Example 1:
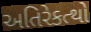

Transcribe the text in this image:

અતિરેકત્થો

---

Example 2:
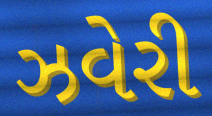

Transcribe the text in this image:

ઝવેરી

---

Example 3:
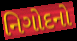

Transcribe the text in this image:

નિગોદનો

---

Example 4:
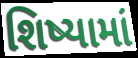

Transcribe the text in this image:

શિષ્યામાં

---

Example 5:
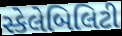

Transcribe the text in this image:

સ્કેલેબિલિટી